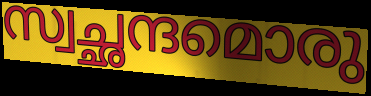
സ്വച്ഛന്ദമൊരു